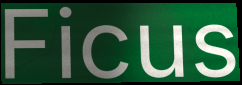
Ficus